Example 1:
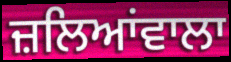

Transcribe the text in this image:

ਜ਼ਲਿਆਂਵਾਲਾ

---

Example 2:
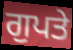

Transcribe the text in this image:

ਗੁਪਤੇ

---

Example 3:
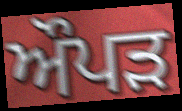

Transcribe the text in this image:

ਔਪੜ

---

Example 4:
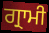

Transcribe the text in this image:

ਗ੍ਰਾਮੀ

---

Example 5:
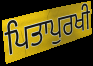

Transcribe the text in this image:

ਪਿਤਾਪੁਰਖੀ